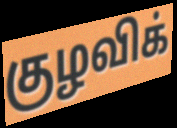
குழவிக்